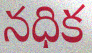
నధిక